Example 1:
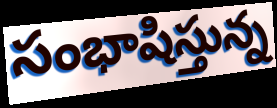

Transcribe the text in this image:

సంభాషిస్తున్న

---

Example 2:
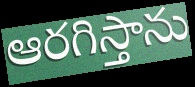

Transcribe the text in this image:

ఆరగిస్తాను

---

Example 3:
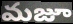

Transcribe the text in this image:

మజూ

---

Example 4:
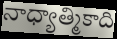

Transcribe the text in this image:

నాధ్యాత్మికాది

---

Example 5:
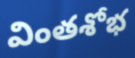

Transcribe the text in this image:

వింతశోభ